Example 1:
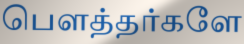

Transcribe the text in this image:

பௌத்தர்களே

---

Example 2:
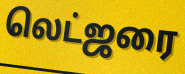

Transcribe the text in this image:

லெட்ஜரை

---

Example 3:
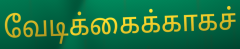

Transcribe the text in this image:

வேடிக்கைக்காகச்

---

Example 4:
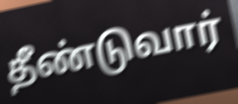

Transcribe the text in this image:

தீண்டுவார்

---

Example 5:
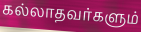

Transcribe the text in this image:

கல்லாதவர்களும்